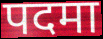
पदमा